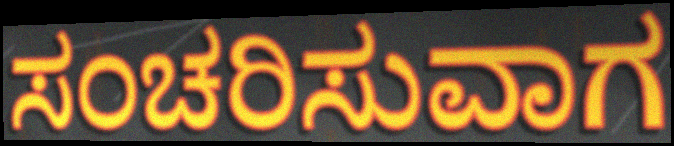
ಸಂಚರಿಸುವಾಗ